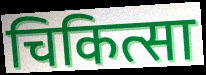
चिकित्सा